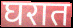
घरात